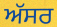
ਅੱਸਰ